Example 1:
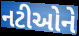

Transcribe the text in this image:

નટીઓને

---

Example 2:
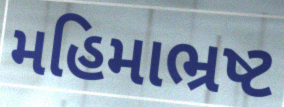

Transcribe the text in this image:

મહિમાભ્રષ્ટ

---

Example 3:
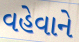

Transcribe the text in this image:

વહેવાને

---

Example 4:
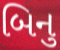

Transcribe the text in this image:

બિનુ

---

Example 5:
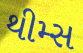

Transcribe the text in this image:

થીમ્સ